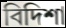
বিদিশা